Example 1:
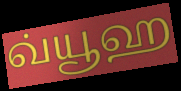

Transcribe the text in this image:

வ்யூஹ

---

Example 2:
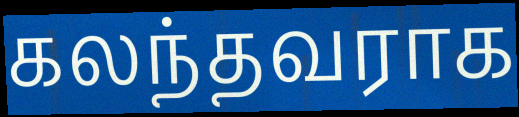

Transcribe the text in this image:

கலந்தவராக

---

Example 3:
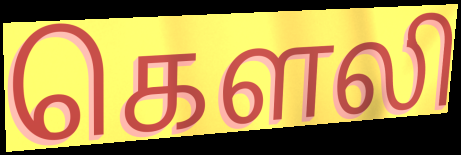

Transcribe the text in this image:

கௌலி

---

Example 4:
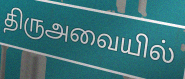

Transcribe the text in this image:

திருஅவையில்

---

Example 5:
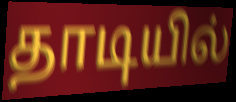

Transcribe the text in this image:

தாடியில்